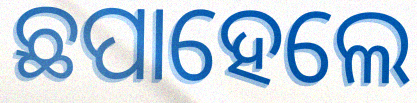
ଛପାହେଲେ